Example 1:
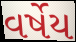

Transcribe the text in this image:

વર્ષેય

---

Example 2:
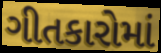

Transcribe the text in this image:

ગીતકારોમાં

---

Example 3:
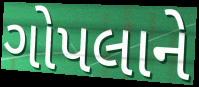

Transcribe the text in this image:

ગોપલાને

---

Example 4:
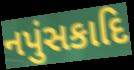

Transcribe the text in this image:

નપુંસકાદિ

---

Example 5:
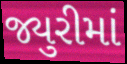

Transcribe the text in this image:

જ્યુરીમાં